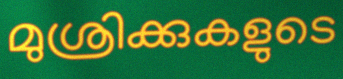
മുശ്രിക്കുകളുടെ